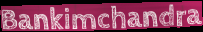
Bankimchandra